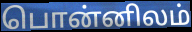
பொன்னிலம்